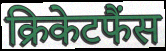
क्रिकेटफैंस